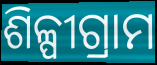
ଶିଳ୍ପୀଗ୍ରାମ